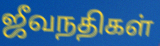
ஜீவநதிகள்